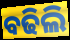
ବଢିଲି